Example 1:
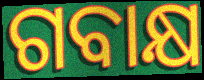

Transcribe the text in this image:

ଗବାକ୍ଷ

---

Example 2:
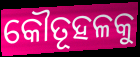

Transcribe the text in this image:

କୌତୂହଳକୁ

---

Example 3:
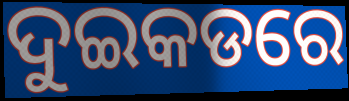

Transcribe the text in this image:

ଦୁଇକଡରେ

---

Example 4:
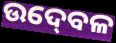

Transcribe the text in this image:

ଉଦ୍‍ବେଳ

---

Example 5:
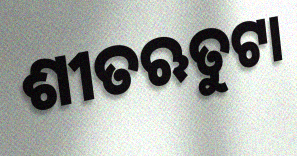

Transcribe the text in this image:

ଶୀତଋତୁଟା